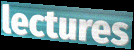
lectures